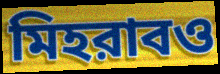
মিহরাবও